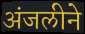
अंजलीने